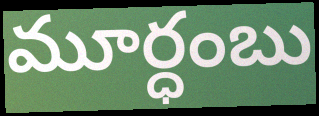
మూర్ధంబు